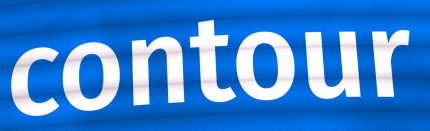
contour